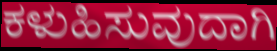
ಕಳುಹಿಸುವುದಾಗಿ